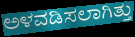
ಅಳವಡಿಸಲಾಗಿತ್ತು